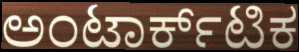
ಅಂಟಾರ್ಕ್‍ಟಿಕ